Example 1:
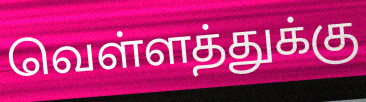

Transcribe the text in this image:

வெள்ளத்துக்கு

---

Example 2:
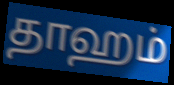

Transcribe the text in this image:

தாஹம்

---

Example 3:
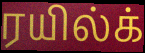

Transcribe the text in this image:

ரயில்க்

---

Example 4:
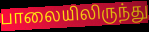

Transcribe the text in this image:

பாலையிலிருந்து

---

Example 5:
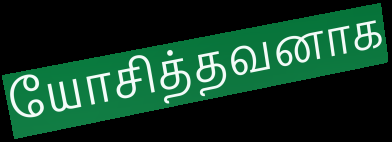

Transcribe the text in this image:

யோசித்தவனாக